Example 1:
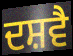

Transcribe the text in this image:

ਦਸ਼ਵੈ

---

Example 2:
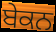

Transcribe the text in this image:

ਬੇਕਨ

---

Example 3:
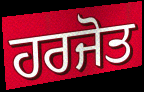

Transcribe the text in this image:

ਹਰਜੋਤ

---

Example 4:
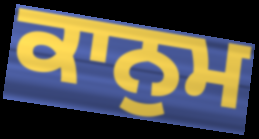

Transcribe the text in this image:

ਕਾਨੁਮ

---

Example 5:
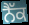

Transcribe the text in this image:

ਨੈੱਕ